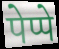
पेप्पे